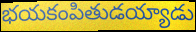
భయకంపితుడయ్యాడు